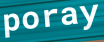
poray